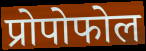
प्रोपोफोल